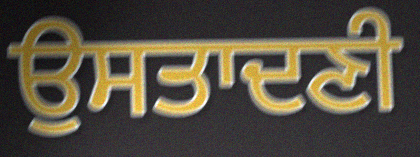
ਉਸਤਾਦਣੀ